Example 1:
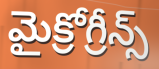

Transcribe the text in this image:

మైక్రోగ్రీన్స్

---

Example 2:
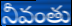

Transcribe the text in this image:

నీవంతు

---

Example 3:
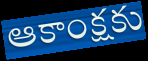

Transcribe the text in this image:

ఆకాంక్షకు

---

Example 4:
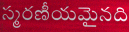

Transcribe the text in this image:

స్మరణీయమైనది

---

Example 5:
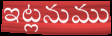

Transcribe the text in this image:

ఇట్లనుము